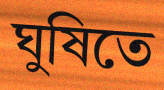
ঘুষিতে